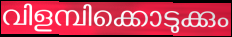
വിളമ്പിക്കൊടുക്കും